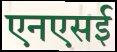
एनएसई